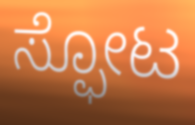
ಸ್ಫೋಟ